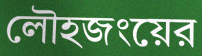
লৌহজংয়ের